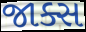
જાક્સ